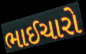
ભાઈચારો